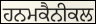
ਹਨਮਕੈਨੀਕਲ